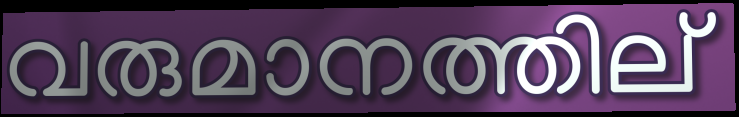
വരുമാനത്തില്